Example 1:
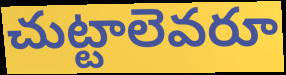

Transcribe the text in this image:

చుట్టాలెవరూ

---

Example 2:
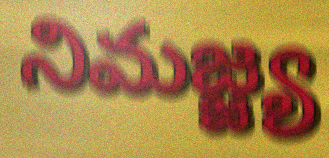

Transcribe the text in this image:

నిమజ్జ్య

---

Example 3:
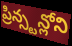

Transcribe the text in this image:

ప్రిన్స్టన్లోని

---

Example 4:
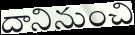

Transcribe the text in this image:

దానినుంచి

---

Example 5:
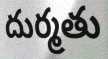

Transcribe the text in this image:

దుర్మతు